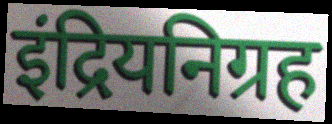
इंद्रियनिग्रह